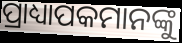
ପ୍ରାଧ୍ୟାପକମାନଙ୍କୁ